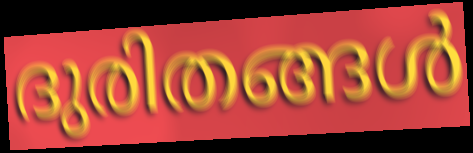
ദുരിതങ്ങൾ